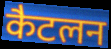
कैटलन